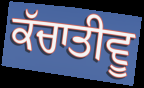
ਕੱਚਾਤੀਵੂ